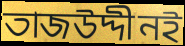
তাজউদ্দীনই